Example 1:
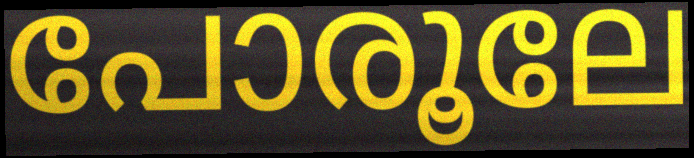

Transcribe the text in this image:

പോരൂലേ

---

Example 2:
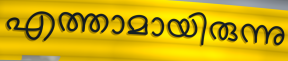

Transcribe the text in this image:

എത്താമായിരുന്നു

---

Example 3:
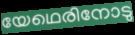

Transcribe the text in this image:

യേഥെരിനോടു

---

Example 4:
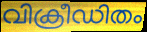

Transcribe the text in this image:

വിക്രീഡിതം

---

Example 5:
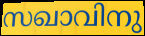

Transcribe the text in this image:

സഖാവിനു